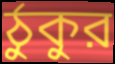
ঠুকুর